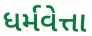
ધર્મવેત્તા